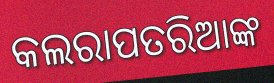
କଲରାପତରିଆଙ୍କ